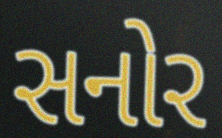
સનોર